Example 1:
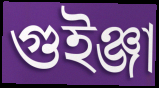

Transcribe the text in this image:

গুইঞ্জা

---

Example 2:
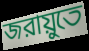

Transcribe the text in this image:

জরায়ুতে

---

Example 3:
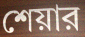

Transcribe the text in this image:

শেয়ার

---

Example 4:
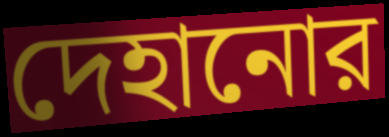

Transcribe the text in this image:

দেহানোর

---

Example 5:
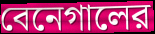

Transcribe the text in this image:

বেনেগালের